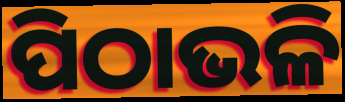
ପିଠାଭଳି